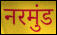
नरमुंड